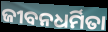
ଜୀବନଧର୍ମିତା